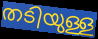
തടിയുള്ള